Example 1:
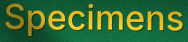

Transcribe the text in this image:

Specimens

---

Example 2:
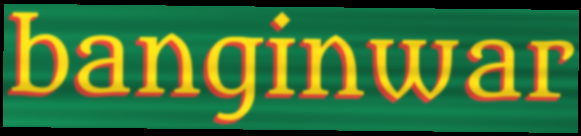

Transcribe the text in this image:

banginwar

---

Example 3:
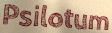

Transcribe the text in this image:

Psilotum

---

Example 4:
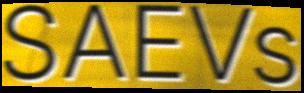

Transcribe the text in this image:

SAEVs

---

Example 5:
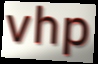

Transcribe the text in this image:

vhp